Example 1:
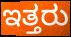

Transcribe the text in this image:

ಇತ್ತರು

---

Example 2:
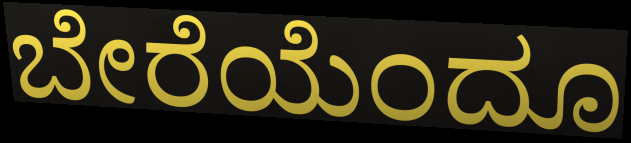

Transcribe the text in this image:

ಬೇರೆಯೆಂದೂ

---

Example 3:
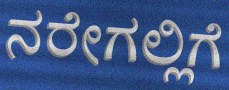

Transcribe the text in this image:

ನರೇಗಲ್ಲಿಗೆ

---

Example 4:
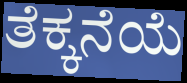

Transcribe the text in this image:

ತೆಕ್ಕನೆಯೆ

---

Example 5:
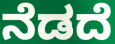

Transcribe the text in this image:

ನೆಡದೆ